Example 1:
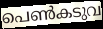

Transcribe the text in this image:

പെൺകടുവ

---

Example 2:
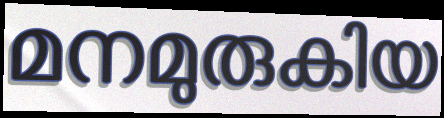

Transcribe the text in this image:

മനമുരുകിയ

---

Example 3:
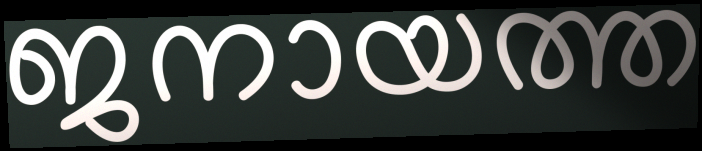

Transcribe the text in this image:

ജനായത്ത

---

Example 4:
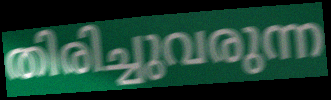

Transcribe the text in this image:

തിരിച്ചുവരുന്ന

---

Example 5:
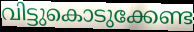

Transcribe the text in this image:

വിട്ടുകൊടുക്കേണ്ട